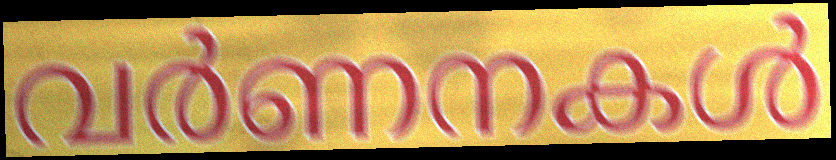
വർണനകൾ